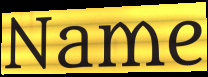
Name